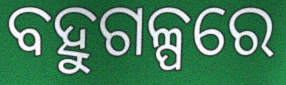
ବହୁଗଳ୍ପରେ